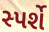
સ્પર્શે